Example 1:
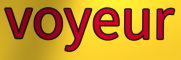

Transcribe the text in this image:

voyeur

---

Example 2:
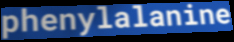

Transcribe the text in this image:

phenylalanine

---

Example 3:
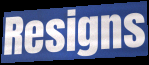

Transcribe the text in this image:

Resigns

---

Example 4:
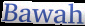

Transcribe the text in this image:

Bawah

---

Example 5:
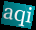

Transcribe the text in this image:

aqi